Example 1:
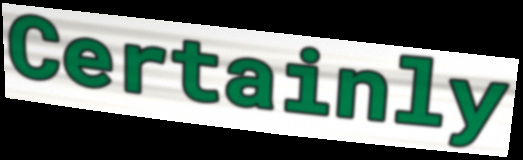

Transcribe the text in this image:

Certainly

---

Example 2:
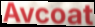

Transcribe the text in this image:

Avcoat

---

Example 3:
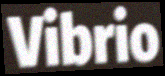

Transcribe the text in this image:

Vibrio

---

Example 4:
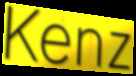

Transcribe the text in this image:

Kenz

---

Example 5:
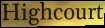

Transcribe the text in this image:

Highcourt